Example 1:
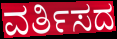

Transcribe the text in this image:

ವರ್ತಿಸದ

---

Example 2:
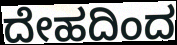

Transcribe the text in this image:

ದೇಹದಿಂದ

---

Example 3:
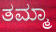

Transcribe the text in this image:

ತಮ್ಮಾ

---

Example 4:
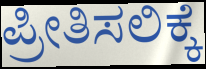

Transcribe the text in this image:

ಪ್ರೀತಿಸಲಿಕ್ಕೆ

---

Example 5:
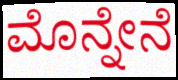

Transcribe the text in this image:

ಮೊನ್ನೇನೆ